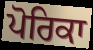
ਪੋਰਿਕਾ